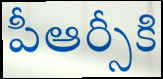
పీఆర్సీకి